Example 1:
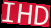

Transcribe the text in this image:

IHD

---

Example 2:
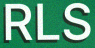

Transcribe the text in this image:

RLS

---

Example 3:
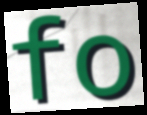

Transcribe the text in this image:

fo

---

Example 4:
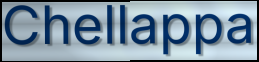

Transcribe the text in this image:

Chellappa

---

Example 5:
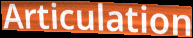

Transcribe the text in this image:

Articulation